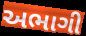
અભાગી